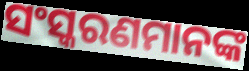
ସଂସ୍କରଣମାନଙ୍କ